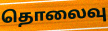
தொலைவு